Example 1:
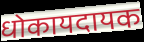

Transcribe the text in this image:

धोकायदायक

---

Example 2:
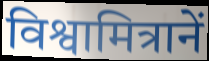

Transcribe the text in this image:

विश्वामित्रानें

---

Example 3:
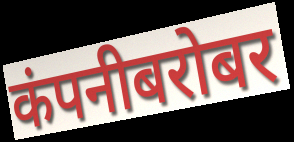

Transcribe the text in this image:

कंपनीबरोबर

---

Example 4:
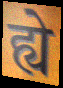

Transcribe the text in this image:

ह्ये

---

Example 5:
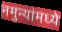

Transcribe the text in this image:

नमुन्यांमध्ये